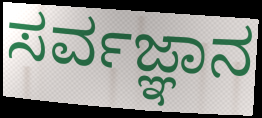
ಸರ್ವಜ್ಞಾನ